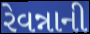
રેવન્નાની